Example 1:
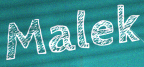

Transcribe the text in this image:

Malek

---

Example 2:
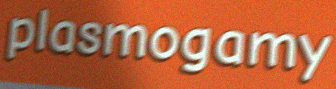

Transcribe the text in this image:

plasmogamy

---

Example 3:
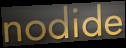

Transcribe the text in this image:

nodide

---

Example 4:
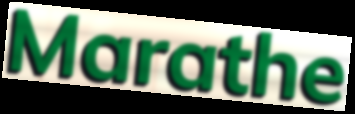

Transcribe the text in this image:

Marathe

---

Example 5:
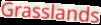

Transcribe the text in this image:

Grasslands